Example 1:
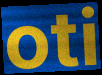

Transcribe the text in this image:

oti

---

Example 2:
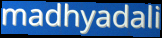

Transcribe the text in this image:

madhyadali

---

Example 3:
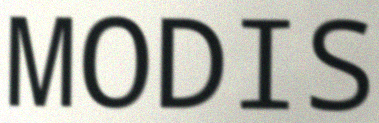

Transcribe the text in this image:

MODIS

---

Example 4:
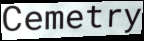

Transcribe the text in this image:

Cemetry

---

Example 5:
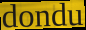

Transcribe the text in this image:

dondu